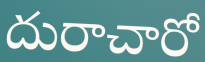
దురాచారో